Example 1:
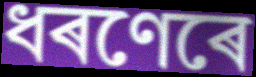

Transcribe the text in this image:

ধৰণেৰে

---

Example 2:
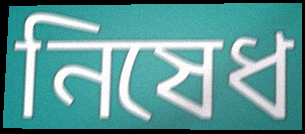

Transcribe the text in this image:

নিষেধ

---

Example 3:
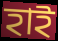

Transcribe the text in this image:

হাই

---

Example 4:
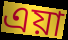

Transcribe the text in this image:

এয়া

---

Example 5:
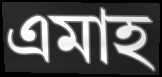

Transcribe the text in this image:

এমাহ